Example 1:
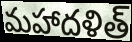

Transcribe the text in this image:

మహాదళిత్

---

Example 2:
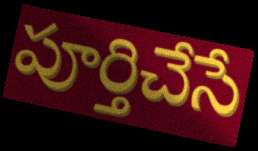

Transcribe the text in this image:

పూర్తిచేసే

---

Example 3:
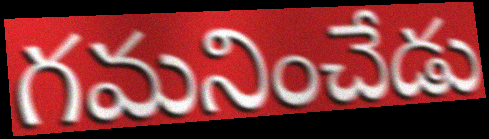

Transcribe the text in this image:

గమనించేడు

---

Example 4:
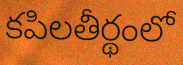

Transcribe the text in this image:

కపిలతీర్థంలో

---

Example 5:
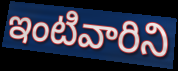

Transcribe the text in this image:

ఇంటివారిని